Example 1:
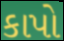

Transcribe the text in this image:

કાપો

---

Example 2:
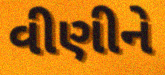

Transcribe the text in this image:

વીણીને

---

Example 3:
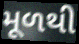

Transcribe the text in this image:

મૂળથી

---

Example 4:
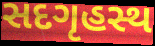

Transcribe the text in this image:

સદગૃહસ્થ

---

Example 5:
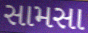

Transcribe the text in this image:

સામસા